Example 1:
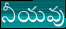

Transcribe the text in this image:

నీయవు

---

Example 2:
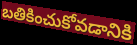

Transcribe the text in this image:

బతికించుకోవడానికి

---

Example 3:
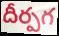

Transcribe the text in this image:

దీర్పగ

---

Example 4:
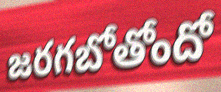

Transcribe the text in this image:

జరగబోతోందో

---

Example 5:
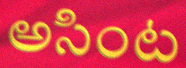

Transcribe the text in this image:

అసింట